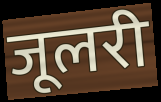
जूलरी